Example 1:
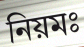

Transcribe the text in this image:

নিয়মঃ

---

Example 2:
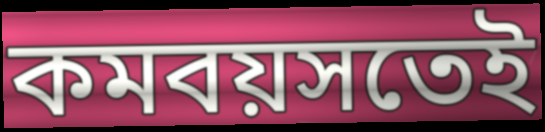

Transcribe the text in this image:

কমবয়সতেই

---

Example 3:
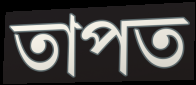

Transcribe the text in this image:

তাপত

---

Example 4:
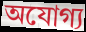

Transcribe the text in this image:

অযোগ্য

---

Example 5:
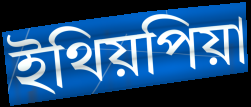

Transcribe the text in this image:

ইথিয়পিয়া